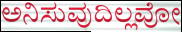
ಅನಿಸುವುದಿಲ್ಲವೋ